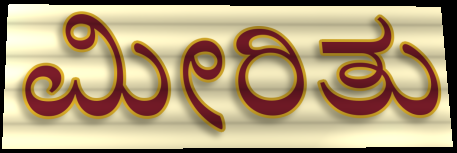
ಮೀರಿತು